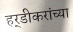
हर्डीकरांच्या